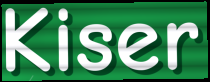
Kiser